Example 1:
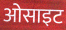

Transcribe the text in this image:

ओसाइट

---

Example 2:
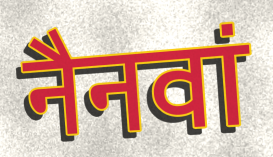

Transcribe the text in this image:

नैनवां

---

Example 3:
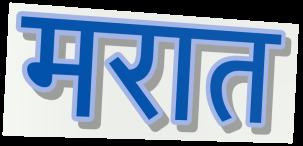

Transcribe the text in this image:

मरात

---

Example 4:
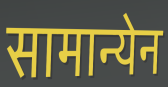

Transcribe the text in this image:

सामान्येन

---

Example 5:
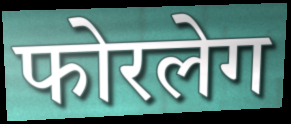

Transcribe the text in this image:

फोरलेग